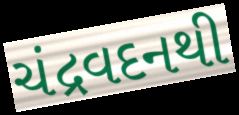
ચંદ્રવદનથી